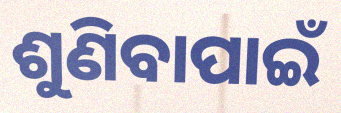
ଶୁଣିବାପାଇଁ